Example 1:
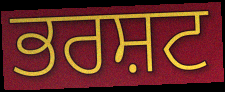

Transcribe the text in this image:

ਭਰਸ਼ਟ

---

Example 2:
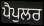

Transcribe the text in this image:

ਪੈਪੁਲਰ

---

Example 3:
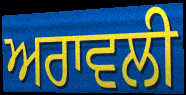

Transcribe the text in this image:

ਅਰਾਵਲੀ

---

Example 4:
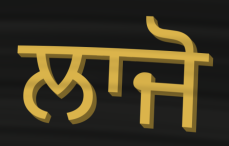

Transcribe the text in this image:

ਲਾਜੋ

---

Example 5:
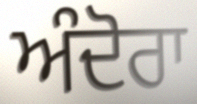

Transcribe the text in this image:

ਅੰਦੋਰਾ